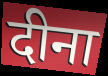
दीना